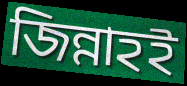
জিন্নাহই